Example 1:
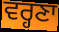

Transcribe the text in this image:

ਵਰ੍ਹਣਾ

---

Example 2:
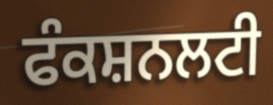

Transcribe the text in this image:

ਫੰਕਸ਼ਨਲਟੀ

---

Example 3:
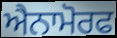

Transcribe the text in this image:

ਐਨਾਮੋਰਫ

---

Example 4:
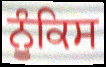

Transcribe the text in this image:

ਨੂੰਕਿਸ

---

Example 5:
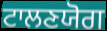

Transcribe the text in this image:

ਟਾਲਣਯੋਗ